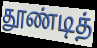
தூண்டித்